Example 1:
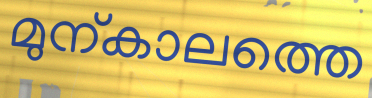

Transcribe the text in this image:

മുന്കാലത്തെ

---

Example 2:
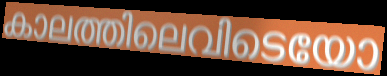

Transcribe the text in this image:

കാലത്തിലെവിടെയോ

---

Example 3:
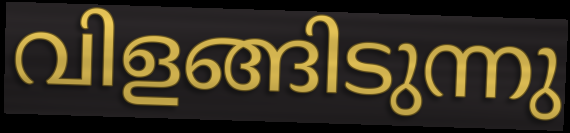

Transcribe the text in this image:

വിളങ്ങിടുന്നു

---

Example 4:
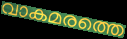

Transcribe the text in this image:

വാകമരത്തെ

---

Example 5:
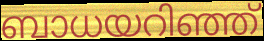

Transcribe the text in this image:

ബാധയറിഞ്ഞ്